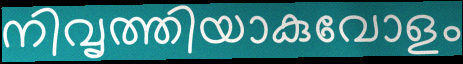
നിവൃത്തിയാകുവോളം